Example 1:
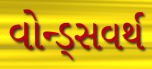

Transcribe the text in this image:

વોન્ડ્સવર્થ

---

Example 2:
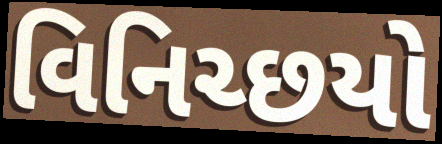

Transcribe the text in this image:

વિનિચ્છયો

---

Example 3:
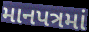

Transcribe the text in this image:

માનપત્રમાં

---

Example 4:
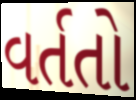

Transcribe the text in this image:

વર્તતો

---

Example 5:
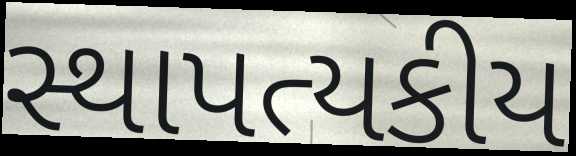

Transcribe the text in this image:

સ્થાપત્યકીય